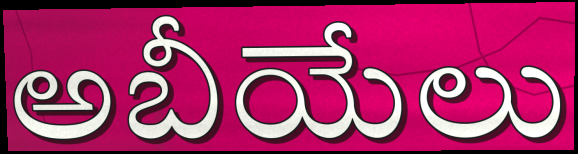
అబీయేలు